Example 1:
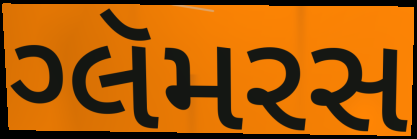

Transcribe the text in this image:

ગ્લૅમરસ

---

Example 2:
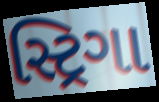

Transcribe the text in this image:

સ્ટ્રિગા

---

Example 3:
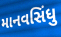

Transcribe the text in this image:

માનવસિંધુ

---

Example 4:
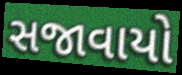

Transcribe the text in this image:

સજાવાયો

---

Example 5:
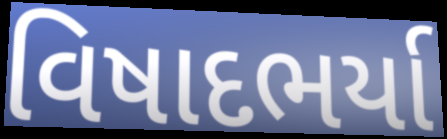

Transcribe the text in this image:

વિષાદભર્યા